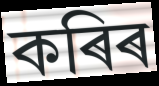
কৰিৰ